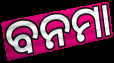
ବନମା